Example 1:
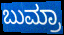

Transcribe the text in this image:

ಬುಮ್ರಾ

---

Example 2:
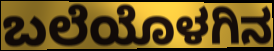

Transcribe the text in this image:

ಬಲೆಯೊಳಗಿನ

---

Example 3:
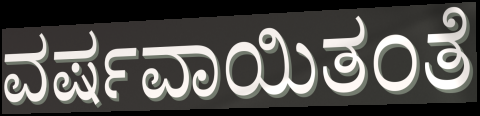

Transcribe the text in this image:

ವರ್ಷವಾಯಿತಂತೆ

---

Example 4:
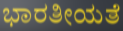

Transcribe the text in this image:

ಭಾರತೀಯತೆ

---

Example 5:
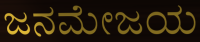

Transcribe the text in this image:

ಜನಮೇಜಯ